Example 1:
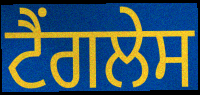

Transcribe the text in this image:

ਟੈਂਗਲੇਸ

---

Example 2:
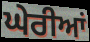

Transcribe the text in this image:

ਘੇਰੀਆਂ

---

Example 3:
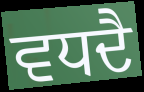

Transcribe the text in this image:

ਵਧਦੈ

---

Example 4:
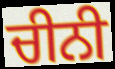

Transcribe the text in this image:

ਚੀਨੀ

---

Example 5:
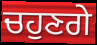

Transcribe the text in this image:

ਚਹੁਣਗੇ